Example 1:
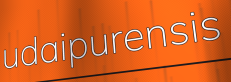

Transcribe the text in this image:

udaipurensis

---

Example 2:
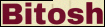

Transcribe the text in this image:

Bitosh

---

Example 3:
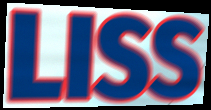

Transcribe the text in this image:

LISS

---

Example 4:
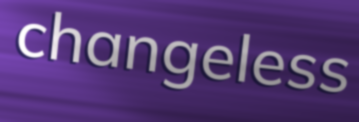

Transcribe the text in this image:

changeless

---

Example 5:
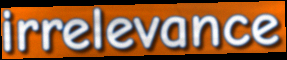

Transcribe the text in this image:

irrelevance